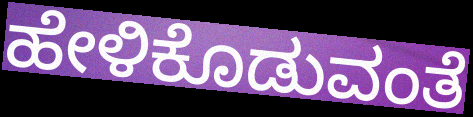
ಹೇಳಿಕೊಡುವಂತೆ